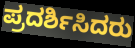
ಪ್ರದರ್ಶಿಸಿದರು